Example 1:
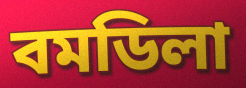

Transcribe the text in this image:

বমডিলা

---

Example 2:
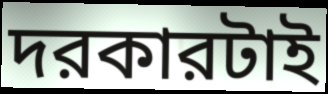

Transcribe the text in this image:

দরকারটাই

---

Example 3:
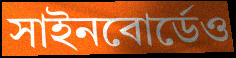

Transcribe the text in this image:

সাইনবোর্ডেও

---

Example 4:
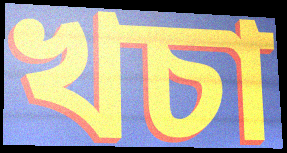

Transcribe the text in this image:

খচা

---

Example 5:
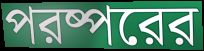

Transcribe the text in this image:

পরষ্পরের